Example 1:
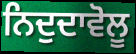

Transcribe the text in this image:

ਨਿਦੁਦਾਵੋਲੂ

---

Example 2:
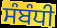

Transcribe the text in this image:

ਸੰਬੰਧੀ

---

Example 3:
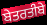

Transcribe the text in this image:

ਬੇਤਰਤੀਬੇ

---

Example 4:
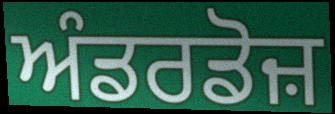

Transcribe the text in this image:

ਅੰਡਰਡੋਜ਼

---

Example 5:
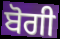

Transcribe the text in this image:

ਬੋਗੀ